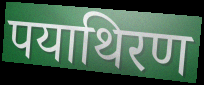
पयाथिरण